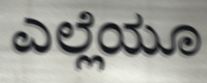
ಎಲ್ಲೆಯೂ